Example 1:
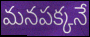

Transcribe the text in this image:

మనపక్కనే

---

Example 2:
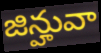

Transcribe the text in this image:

జిన్హువా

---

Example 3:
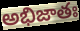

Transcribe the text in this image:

అభిజాతః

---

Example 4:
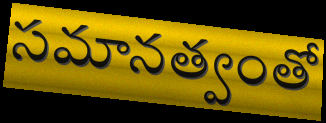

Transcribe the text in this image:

సమానత్వంతో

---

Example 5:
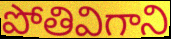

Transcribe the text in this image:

పోతివిగాని